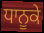
ਧਾਨੂਕੇ